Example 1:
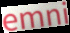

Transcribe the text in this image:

emni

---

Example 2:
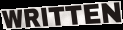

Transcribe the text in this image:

WRITTEN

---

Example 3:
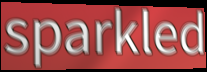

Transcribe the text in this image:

sparkled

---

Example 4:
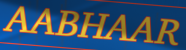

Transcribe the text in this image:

AABHAAR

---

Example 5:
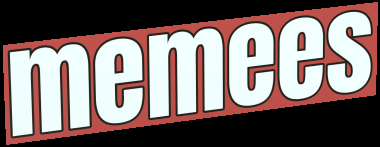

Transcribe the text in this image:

memees